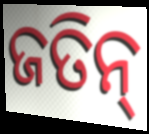
ଜତିନ୍